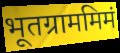
भूतग्राममिमं